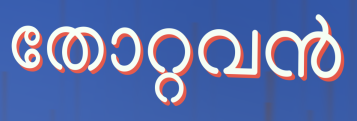
തോറ്റവൻ